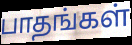
பாதங்கள்